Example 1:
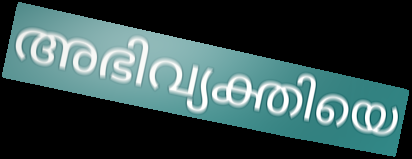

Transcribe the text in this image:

അഭിവ്യക്തിയെ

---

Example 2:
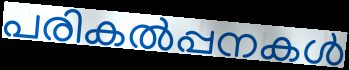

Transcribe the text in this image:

പരികൽപ്പനകൾ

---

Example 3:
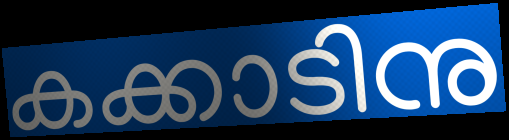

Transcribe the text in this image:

കക്കാടിനു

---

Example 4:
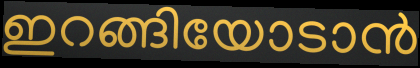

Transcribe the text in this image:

ഇറങ്ങിയോടാൻ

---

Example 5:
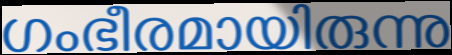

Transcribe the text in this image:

ഗംഭീരമായിരുന്നു